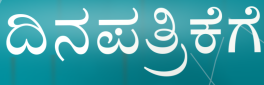
ದಿನಪತ್ರಿಕೆಗೆ